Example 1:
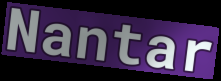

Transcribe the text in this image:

Nantar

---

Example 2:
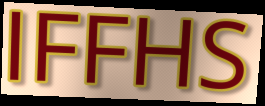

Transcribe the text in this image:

IFFHS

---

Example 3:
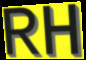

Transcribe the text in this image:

RH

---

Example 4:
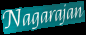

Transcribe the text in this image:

Nagarajan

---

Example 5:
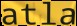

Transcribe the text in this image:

atla